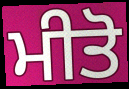
ਮੀਤੋ